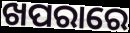
ଖପରାରେ